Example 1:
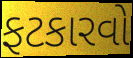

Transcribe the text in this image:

ફટકારવો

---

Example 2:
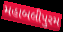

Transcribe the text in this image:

મહાબલીપુરમ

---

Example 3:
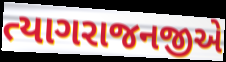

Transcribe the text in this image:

ત્યાગરાજનજીએ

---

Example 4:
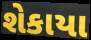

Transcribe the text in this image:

શેકાયા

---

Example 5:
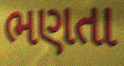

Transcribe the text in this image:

ભણતા